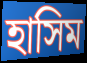
হাসিম